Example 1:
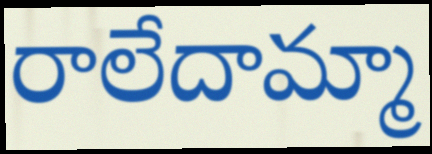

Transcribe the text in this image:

రాలేదామ్మా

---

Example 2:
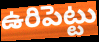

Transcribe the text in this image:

ఉరిపెట్టు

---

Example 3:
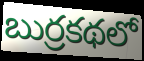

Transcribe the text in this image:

బుర్రకథలో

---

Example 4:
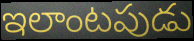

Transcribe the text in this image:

ఇలాంటపుడు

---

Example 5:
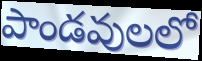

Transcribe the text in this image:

పాండవులలో